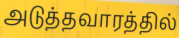
அடுத்தவாரத்தில்